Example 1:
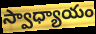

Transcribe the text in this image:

స్వాధ్యాయం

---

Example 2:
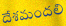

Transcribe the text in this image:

దేశమందలి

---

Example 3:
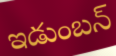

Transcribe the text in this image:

ఇడుంబన్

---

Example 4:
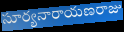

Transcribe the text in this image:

సూర్యనారాయణరాజు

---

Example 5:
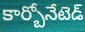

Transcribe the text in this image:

కార్బోనేటెడ్